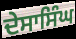
ਦੇਸਾਸਿੰਘ